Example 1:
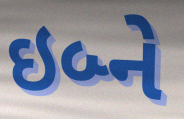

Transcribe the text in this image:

ઇબ્ને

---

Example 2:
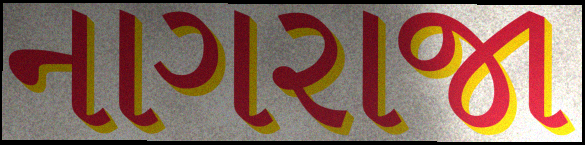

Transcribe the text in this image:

નાગરાજા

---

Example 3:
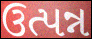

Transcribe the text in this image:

ઉત્પન્ન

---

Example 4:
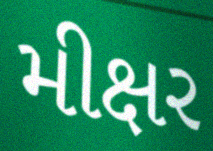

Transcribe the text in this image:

મીક્ષર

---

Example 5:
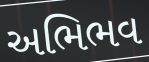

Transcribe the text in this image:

અભિભવ